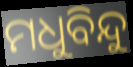
ମଧୁବିନ୍ଦୁ